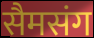
सैमसंग